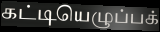
கட்டியெழுப்பக்